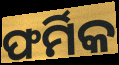
ଫର୍ମିକ